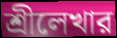
শ্রীলেখার